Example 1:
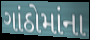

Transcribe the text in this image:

ગાંઠોમાંના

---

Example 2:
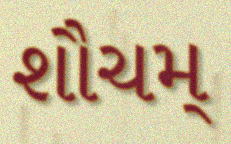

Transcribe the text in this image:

શૌચમ્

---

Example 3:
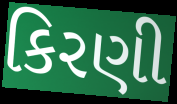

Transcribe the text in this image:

કિરણી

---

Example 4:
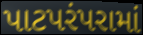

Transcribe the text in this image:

પાટપરંપરામાં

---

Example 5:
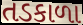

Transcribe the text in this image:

તડકાળા